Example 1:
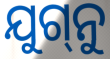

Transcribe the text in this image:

ଯୁଗ୍‌ନୁ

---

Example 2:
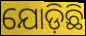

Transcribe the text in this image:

ଯୋଡ଼ିଛି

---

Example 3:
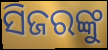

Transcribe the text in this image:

ସିଜରଙ୍କୁ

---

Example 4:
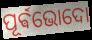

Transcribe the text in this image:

ପୂର୍ଵଭୋଦୋ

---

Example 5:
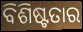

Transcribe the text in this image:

ବିଶିଷ୍ଟତାର